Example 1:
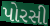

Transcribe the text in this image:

પોરસી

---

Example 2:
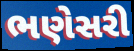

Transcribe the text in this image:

ભણેસરી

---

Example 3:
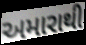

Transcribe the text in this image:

અમારાથી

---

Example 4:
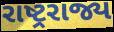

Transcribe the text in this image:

રાષ્ટ્રરાજ્ય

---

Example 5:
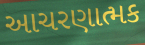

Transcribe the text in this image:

આચરણાત્મક